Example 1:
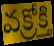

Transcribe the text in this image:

వక్రోక్తి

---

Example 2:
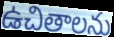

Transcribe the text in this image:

ఉచితాలను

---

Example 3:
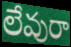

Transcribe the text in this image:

లేవురా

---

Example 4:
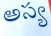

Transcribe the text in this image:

అస్య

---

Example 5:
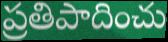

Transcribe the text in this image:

ప్రతిపాదించు